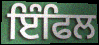
ਇੰਫਿਲ